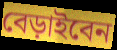
বেড়াইবেন